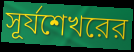
সূর্যশেখরের